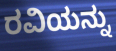
ರವಿಯನ್ನು